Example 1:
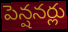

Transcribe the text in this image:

పెన్షనర్లు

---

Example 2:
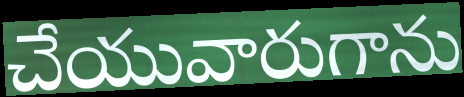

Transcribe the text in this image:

చేయువారుగాను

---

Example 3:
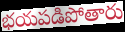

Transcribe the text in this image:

భయపడిపోతారు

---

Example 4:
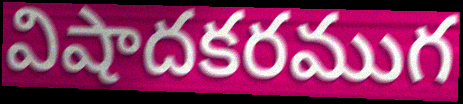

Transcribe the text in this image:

విషాదకరముగ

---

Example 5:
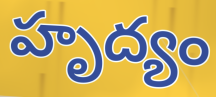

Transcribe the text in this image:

హృద్యం